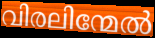
വിരലിന്മേൽ